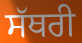
ਸੱਥਰੀ